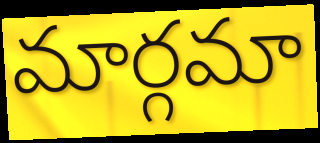
మార్గమా